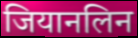
जियानलिन